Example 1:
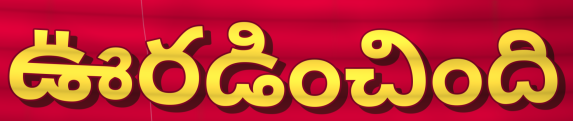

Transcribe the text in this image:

ఊరడించింది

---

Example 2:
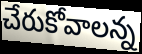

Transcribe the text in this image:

చేరుకోవాలన్న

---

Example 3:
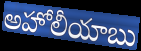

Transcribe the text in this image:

అహోలీయాబు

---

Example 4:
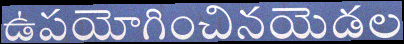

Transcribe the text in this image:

ఉపయోగించినయెడల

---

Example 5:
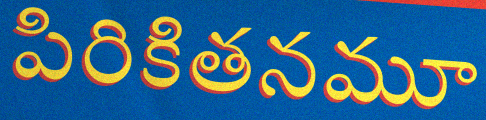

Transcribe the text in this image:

పిరికితనమూ